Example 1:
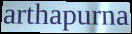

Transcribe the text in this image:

arthapurna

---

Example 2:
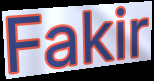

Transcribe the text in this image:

Fakir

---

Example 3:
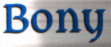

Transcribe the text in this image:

Bony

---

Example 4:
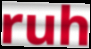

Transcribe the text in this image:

ruh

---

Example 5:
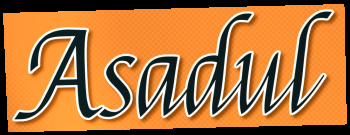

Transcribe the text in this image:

Asadul